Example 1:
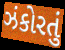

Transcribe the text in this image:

ઝંકોરતું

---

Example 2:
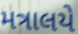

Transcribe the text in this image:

મત્રાલયે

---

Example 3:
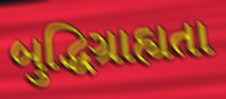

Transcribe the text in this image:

બુદ્ધિગ્રાહ્યતા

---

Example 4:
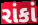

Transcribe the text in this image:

રાંકાં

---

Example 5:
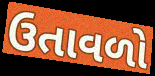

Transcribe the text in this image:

ઉતાવળો